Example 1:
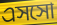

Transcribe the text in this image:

এসসো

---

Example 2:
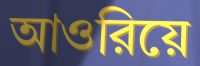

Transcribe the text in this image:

আওরিয়ে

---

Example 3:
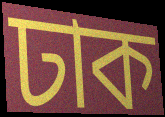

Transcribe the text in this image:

ঢাক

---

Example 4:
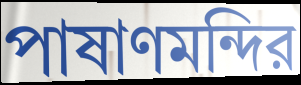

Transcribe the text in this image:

পাষাণমন্দির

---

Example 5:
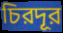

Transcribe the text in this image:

চিরদূর